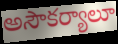
అసౌకర్యాలూ